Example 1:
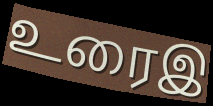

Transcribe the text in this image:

உரைஇ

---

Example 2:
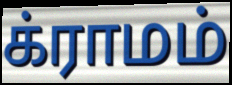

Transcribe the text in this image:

க்ராமம்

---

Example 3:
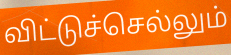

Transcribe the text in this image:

விட்டுச்செல்லும்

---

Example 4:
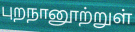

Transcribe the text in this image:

புறநானூற்றுள்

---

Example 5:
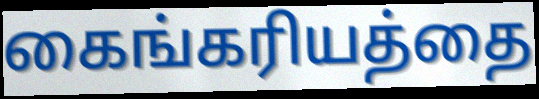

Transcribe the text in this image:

கைங்கரியத்தை